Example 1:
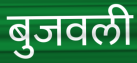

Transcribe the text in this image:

बुजवली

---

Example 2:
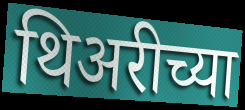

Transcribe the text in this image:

थिअरीच्या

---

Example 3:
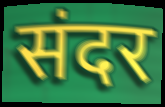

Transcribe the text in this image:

संदर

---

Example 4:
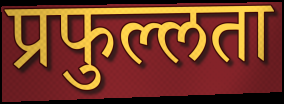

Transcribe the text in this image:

प्रफुल्लता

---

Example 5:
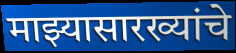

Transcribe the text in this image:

माझ्यासारख्यांचे